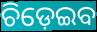
ଚିଡ଼େଇବ